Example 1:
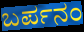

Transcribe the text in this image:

ಬರ್ಪನಂ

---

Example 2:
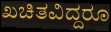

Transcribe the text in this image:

ಖಚಿತವಿದ್ದರೂ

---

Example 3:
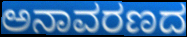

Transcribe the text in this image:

ಅನಾವರಣದ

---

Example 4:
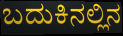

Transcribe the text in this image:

ಬದುಕಿನಲ್ಲಿನ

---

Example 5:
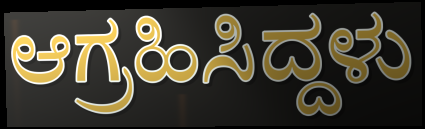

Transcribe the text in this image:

ಆಗ್ರಹಿಸಿದ್ದಳು